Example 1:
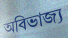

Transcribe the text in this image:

অবিভাজ্য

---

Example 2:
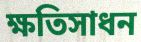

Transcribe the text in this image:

ক্ষতিসাধন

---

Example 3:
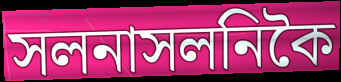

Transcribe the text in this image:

সলনাসলনিকৈ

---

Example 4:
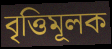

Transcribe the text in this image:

বৃত্তিমূলক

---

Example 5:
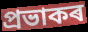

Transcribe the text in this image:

প্ৰভাকৰ